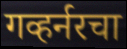
गव्हर्नरचा